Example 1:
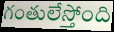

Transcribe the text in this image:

గంతులేస్తోంది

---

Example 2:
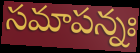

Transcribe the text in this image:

సమాపన్నః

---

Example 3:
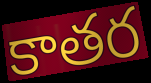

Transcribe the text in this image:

కాతర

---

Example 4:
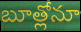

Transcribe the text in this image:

బూత్లోనూ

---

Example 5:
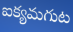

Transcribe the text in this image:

ఐక్యమగుట